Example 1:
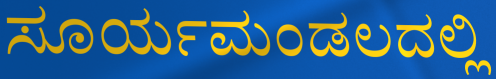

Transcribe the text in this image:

ಸೂರ್ಯಮಂಡಲದಲ್ಲಿ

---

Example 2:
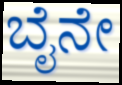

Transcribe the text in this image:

ಬೈನೇ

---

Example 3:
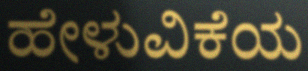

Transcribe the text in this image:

ಹೇಳುವಿಕೆಯ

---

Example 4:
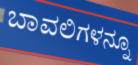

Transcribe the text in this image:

ಬಾವಲಿಗಳನ್ನೂ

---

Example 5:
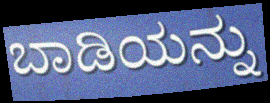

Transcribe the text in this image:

ಬಾಡಿಯನ್ನು